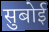
सुबोई